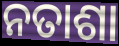
ନତାଶା